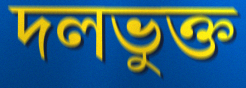
দলভুক্ত